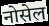
नोसेल